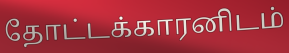
தோட்டக்காரனிடம்